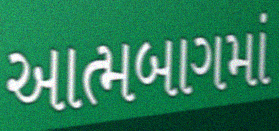
આત્મબાગમાં